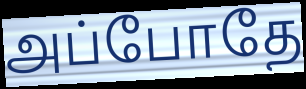
அப்போதே